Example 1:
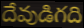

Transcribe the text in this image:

దేవుడిగది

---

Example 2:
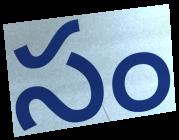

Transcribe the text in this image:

సం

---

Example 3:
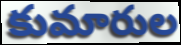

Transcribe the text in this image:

కుమారుల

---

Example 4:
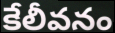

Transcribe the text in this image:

కేలీవనం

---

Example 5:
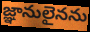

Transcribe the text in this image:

జ్ఞానులైనను